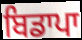
ਬਿਡਾਪਾ